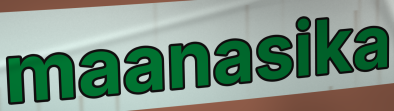
maanasika